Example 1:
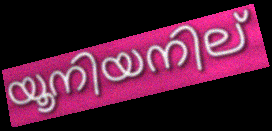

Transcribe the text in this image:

യൂനിയനില്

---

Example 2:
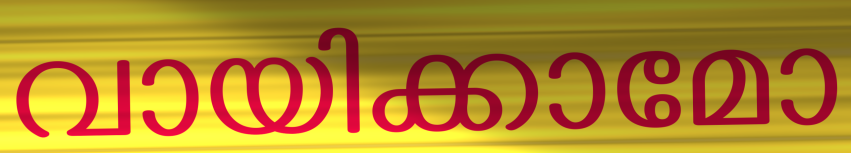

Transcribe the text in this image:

വായിക്കാമോ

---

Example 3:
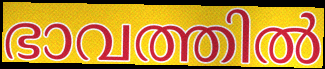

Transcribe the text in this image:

ഭാവത്തിൽ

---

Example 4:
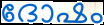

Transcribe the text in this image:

ദോഷം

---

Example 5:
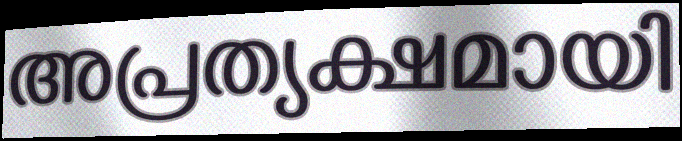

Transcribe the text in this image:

അപ്രത്യക്ഷമായി